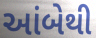
આંબેથી